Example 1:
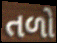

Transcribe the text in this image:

તળો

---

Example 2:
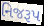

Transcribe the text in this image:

નિજરૂપ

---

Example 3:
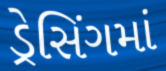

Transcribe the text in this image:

ડ્રેસિંગમાં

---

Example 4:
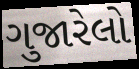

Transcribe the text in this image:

ગુજારેલો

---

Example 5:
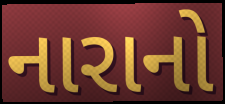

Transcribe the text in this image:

નારાનો